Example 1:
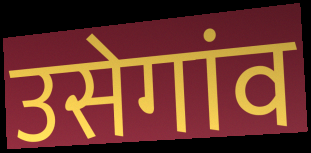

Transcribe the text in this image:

उसेगांव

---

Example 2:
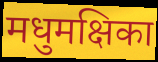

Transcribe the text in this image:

मधुमक्षिका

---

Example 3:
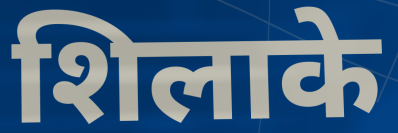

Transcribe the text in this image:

शिलाके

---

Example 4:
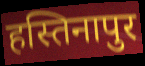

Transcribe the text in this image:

हस्तिनापुर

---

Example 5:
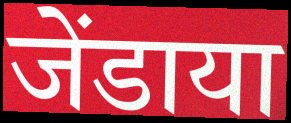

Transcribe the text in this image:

जेंडाया